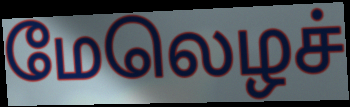
மேலெழச்